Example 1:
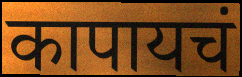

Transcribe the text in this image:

कापायचं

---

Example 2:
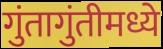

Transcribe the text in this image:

गुंतागुंतीमध्ये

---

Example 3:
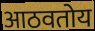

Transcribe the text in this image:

आठवतोय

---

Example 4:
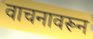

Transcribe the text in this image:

वाचनावरून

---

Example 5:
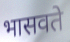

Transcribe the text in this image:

भासवते